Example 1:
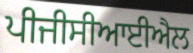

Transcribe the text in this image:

ਪੀਜੀਸੀਆਈਐਲ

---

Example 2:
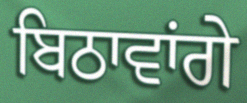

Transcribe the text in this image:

ਬਿਠਾਵਾਂਗੇ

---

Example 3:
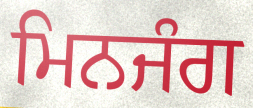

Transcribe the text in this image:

ਮਿਨਜੰਗ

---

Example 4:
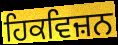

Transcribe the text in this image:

ਹਿਕਵਿਜ਼ਨ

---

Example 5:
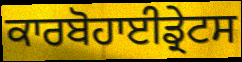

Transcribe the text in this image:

ਕਾਰਬੋਹਾਈਡ੍ਰੇਟਸ